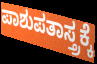
ಪಾಶುಪತಾಸ್ತ್ರಕ್ಕೆ